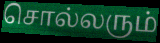
சொல்லரும்